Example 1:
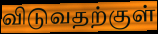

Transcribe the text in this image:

விடுவதற்குள்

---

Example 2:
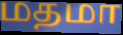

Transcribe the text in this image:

மதமா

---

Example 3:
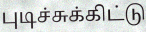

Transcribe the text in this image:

புடிச்சுக்கிட்டு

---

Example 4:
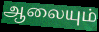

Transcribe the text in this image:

ஆலையும்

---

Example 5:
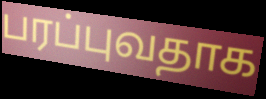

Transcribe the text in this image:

பரப்புவதாக